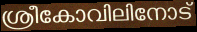
ശ്രീകോവിലിനോട്